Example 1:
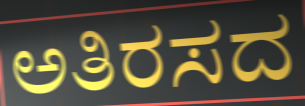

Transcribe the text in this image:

ಅತಿರಸದ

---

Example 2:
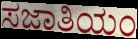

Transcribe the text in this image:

ಸಜಾತಿಯಂ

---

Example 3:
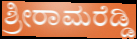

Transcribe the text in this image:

ಶ್ರೀರಾಮರೆಡ್ಡಿ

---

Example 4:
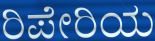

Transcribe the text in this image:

ರಿಪೇರಿಯ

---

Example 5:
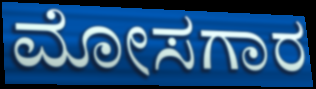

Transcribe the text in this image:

ಮೋಸಗಾರ